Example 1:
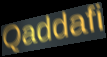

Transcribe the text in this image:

Qaddafi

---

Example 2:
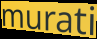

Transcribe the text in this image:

murati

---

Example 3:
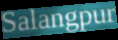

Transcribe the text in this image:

Salangpur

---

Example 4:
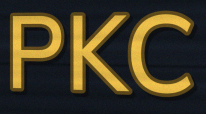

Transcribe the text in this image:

PKC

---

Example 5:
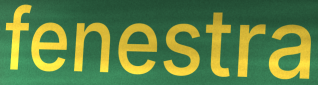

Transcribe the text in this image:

fenestra